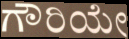
ಗೌರಿಯೇ